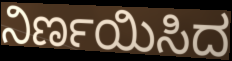
ನಿರ್ಣಯಿಸಿದ